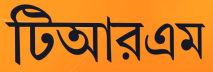
টিআরএম